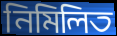
নিমিলিত